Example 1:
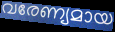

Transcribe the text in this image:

വരേണ്യമായ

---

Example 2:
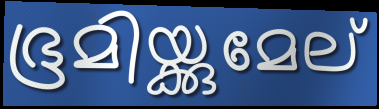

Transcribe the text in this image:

ഭൂമിയ്ക്കുമേല്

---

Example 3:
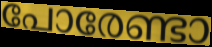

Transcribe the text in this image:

പോരേണ്ടാ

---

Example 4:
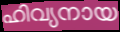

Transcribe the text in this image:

ഹിവ്യനായ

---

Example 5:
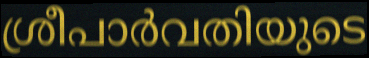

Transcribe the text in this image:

ശ്രീപാർവതിയുടെ